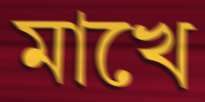
মাখে